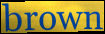
brown